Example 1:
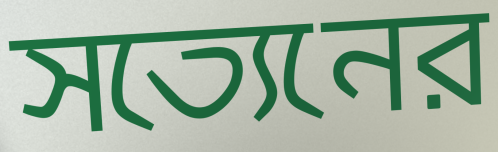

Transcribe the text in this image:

সত্যেনের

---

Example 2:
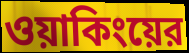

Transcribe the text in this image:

ওয়াকিংয়ের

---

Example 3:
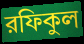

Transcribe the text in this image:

রফিকুল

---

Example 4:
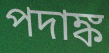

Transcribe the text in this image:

পদাঙ্ক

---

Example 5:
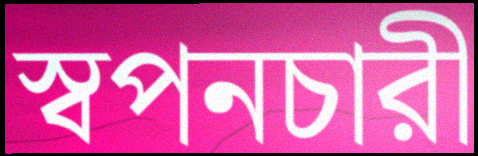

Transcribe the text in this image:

স্বপনচারী